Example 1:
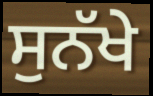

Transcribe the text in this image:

ਸੁਨੱਖੇ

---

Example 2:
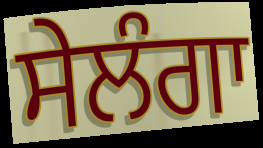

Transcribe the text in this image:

ਸੇਲੰਗਾ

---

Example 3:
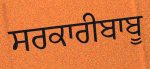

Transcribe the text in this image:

ਸਰਕਾਰੀਬਾਬੂ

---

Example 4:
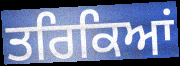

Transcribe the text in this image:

ਤਰਿਕਿਆਂ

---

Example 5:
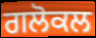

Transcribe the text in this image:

ਗਲੋਕਲ